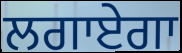
ਲਗਾਏਗਾ